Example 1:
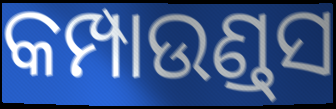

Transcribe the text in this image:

କମ୍ପାଉଣ୍ଡ୍‌ସ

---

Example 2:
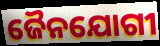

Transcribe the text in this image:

ଜୈନଯୋଗୀ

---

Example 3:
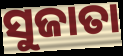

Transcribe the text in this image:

ସୁଜାତା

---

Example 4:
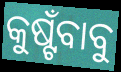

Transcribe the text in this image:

କୁଷ୍ଟଁବାବୁ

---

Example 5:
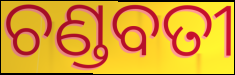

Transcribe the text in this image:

ଚଣ୍ଡବତୀ